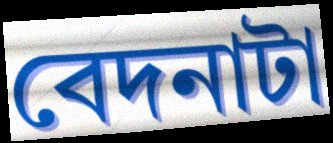
বেদনাটা